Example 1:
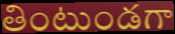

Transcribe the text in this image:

తింటుండగా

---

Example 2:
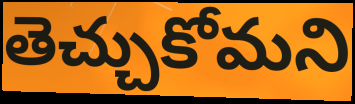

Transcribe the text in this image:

తెచ్చుకోమని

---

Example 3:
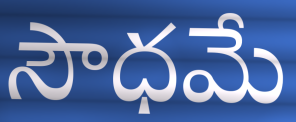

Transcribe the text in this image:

సౌధమే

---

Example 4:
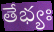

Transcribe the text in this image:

తేభ్యః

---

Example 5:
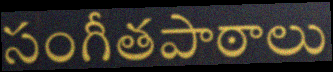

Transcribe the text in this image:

సంగీతపాఠాలు